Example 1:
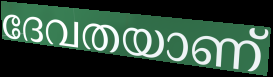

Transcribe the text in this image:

ദേവതയാണ്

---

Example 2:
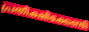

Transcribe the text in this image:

പ്രതീക്ഷിക്കേണ്ടി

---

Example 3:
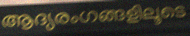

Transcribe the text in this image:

ആദ്യരംഗങ്ങളിലൂടെ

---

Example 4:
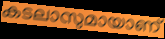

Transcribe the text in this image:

കടലാസുമായാണ്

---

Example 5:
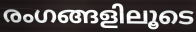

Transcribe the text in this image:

രംഗങ്ങളിലൂടെ